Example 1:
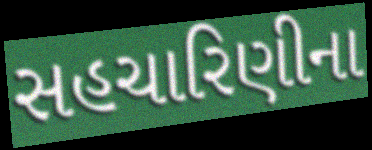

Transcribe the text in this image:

સહચારિણીના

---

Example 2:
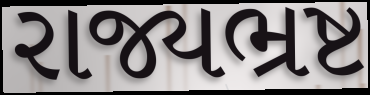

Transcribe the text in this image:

રાજ્યભ્રષ્ટ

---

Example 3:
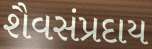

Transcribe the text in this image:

શૈવસંપ્રદાય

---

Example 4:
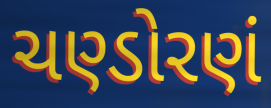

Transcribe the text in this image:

ચણ્ડોરણં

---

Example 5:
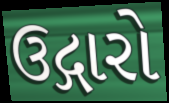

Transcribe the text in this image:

ઉદ્ગારો